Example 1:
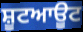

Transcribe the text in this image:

ਸ਼ੂਟਆਊਟ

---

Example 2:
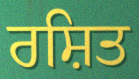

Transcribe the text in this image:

ਰਸ਼ਿਤ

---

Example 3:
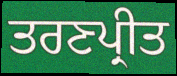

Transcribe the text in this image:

ਤਰਣਪ੍ਰੀਤ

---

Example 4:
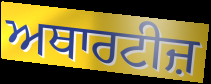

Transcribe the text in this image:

ਅਥਾਰਟੀਜ਼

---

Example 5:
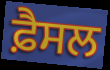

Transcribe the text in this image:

ਫ਼ੈਸਲ